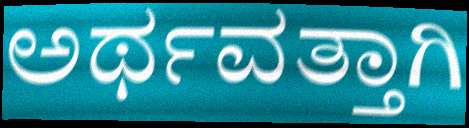
ಅರ್ಥವತ್ತಾಗಿ